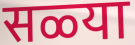
सळ्या